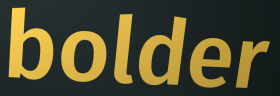
bolder